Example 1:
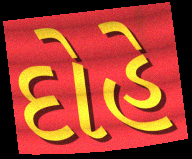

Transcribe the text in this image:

દોહે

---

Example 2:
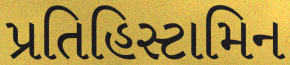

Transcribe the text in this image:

પ્રતિહિસ્ટામિન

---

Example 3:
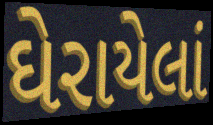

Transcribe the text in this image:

ઘેરાયેલાં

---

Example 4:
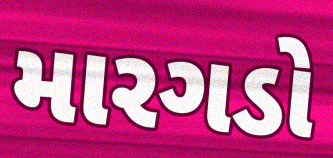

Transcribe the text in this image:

મારગડો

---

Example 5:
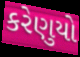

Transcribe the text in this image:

કરેણુયો